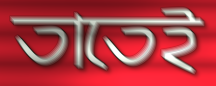
তাতেই